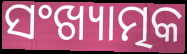
ସଂଖ୍ୟାତ୍ମକ